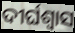
ଦୀର୍ଘଶ୍ଵାସ